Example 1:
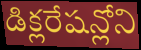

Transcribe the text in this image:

డిక్లరేషన్లోని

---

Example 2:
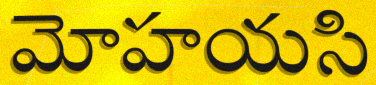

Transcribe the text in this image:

మోహయసి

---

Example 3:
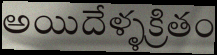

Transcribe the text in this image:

అయిదేళ్ళక్రితం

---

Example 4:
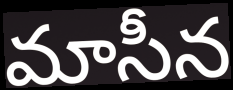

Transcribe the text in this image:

మాసీన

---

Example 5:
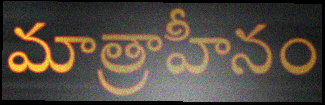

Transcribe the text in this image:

మాత్రాహీనం